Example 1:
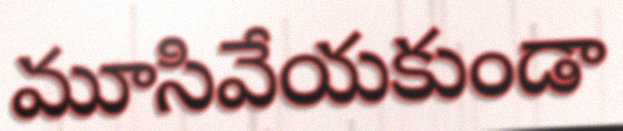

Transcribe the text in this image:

మూసివేయకుండా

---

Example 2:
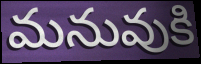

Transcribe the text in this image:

మనువుకి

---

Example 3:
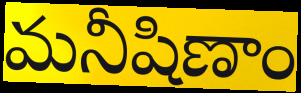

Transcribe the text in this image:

మనీషిణాం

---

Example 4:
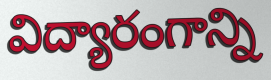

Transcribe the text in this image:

విద్యారంగాన్ని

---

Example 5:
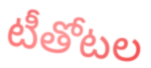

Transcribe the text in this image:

టీతోటల